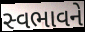
સ્વભાવને